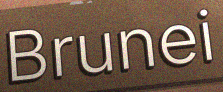
Brunei